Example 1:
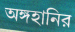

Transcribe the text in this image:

অঙ্গহানির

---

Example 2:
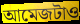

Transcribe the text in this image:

আমেজটাও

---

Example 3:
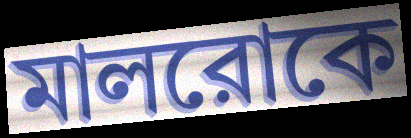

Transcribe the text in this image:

মালরোকে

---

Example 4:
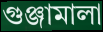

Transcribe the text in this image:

গুঞ্জামালা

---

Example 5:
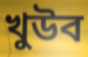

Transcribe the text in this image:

খুউব